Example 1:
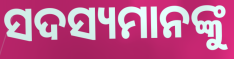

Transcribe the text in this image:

ସଦସ୍ୟମାନଙ୍କୁ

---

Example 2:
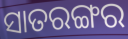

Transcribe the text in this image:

ସାତରଙ୍ଗର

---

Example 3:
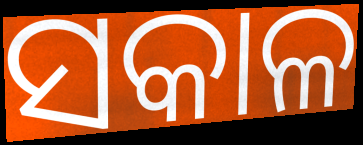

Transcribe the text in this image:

ସକାଳ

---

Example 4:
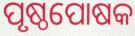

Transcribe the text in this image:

ପୃଷ୍ଠପୋଷକ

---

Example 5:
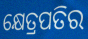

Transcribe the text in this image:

କ୍ଷେତ୍ରପତିର